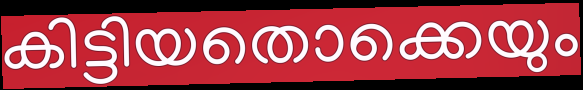
കിട്ടിയതൊക്കെയും